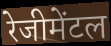
रेजीमेंटल